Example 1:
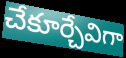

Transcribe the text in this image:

చేకూర్చేవిగా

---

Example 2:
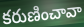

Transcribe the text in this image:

కరుణించావా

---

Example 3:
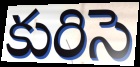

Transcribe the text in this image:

కురిసె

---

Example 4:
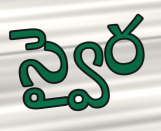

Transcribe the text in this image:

స్వైర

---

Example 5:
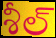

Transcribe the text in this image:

శీల్